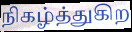
நிகழ்த்துகிற